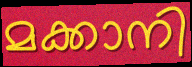
മക്കാനി